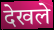
देखले